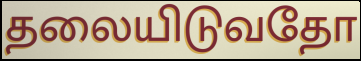
தலையிடுவதோ